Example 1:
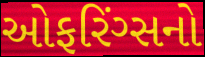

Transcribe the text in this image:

ઓફરિંગ્સનો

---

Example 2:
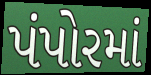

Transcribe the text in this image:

પંપોરમાં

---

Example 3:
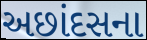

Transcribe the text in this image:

અછાંદસના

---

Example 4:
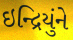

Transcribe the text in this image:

ઇન્દ્રિયુંને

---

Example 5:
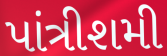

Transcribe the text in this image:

પાંત્રીશમી